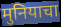
मुनियाचा